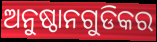
ଅନୁଷ୍ଠାନଗୁଡିକର